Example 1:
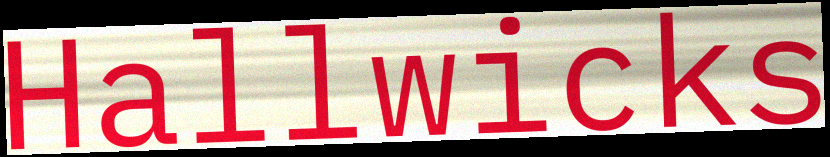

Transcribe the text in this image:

Hallwicks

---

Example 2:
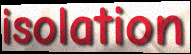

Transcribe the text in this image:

isolation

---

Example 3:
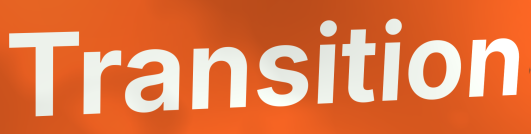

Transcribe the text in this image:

Transition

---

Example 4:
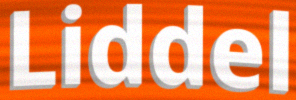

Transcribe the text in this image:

Liddel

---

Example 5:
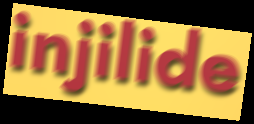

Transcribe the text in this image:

injilide